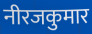
नीरजकुमार